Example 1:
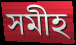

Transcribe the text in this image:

সমীহ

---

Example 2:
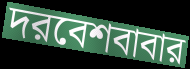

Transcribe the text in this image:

দরবেশবাবার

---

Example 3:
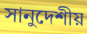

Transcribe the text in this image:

সানুদেশীয়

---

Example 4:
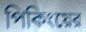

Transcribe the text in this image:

পিকিংয়ের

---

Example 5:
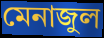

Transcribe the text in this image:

মেনাজুল